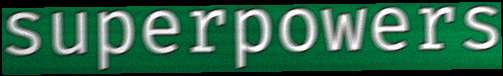
superpowers